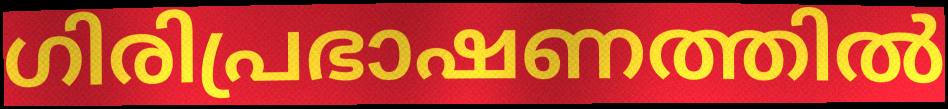
ഗിരിപ്രഭാഷണത്തിൽ